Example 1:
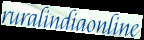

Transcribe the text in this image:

ruralindiaonline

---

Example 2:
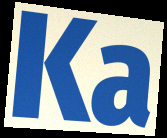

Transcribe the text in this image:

Ka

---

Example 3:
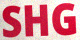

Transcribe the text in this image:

SHG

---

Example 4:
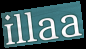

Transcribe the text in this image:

illaa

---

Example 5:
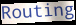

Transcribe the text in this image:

Routing